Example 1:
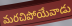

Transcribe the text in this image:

మరచిపోయేవాడు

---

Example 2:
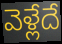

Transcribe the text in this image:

వెళ్లేదే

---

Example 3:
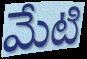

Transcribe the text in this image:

మేటి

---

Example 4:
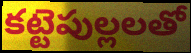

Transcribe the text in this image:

కట్టెపుల్లలతో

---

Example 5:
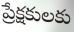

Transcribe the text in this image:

ప్రేక్షకులకు